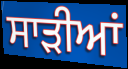
ਸਾਡ਼ੀਆਂ